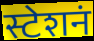
स्टेशनं